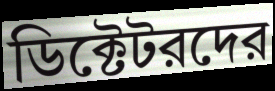
ডিক্টেটরদের